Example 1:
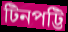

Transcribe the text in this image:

টিনপট্টি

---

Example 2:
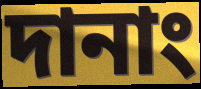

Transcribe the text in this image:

দানাং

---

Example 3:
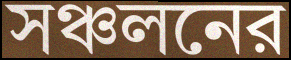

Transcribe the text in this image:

সঞ্চলনের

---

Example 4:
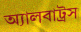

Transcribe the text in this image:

অ্যালবাট্রস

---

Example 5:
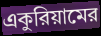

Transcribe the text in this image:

একুরিয়ামের